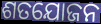
ଶତଯୋଜନ